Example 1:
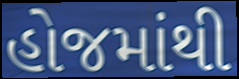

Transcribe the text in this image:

હોજમાંથી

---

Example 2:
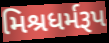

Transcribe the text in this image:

મિશ્રધર્મરૂપ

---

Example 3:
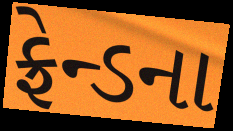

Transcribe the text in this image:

ફ્રેન્ડના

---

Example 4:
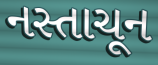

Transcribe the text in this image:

નસ્તાચૂન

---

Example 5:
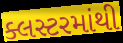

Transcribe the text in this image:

ક્લસ્ટરમાંથી